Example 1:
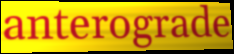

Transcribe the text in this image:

anterograde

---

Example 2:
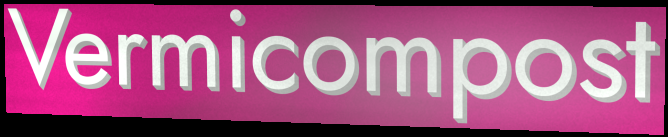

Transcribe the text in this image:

Vermicompost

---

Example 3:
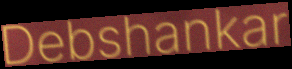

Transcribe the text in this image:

Debshankar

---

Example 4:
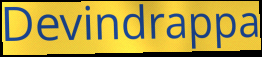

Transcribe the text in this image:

Devindrappa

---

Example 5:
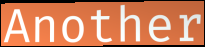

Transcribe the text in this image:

Another